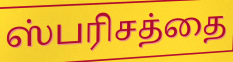
ஸ்பரிசத்தை